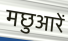
मछुआरें